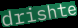
drishte